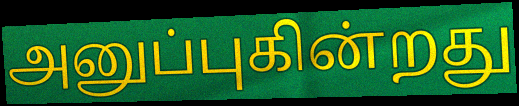
அனுப்புகின்றது